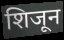
शिजून